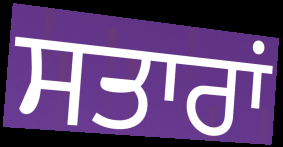
ਸਤਾਰਾਂ